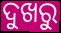
ଦୁଖରୁ